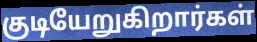
குடியேறுகிறார்கள்